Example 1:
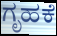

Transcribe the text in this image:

ಗೃಹಕೆ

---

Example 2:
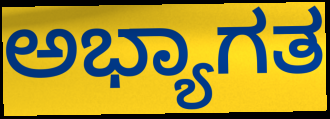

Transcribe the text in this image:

ಅಭ್ಯಾಗತ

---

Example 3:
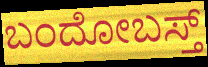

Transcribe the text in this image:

ಬಂದೋಬಸ್ತ್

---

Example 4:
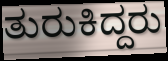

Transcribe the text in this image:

ತುರುಕಿದ್ದರು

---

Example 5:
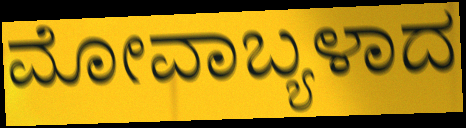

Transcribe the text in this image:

ಮೋವಾಬ್ಯಳಾದ